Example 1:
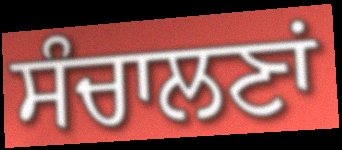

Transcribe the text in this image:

ਸੰਚਾਲਣਾਂ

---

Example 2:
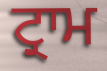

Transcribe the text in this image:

ਟ੍ਰਾਮ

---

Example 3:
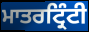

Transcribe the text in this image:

ਮਾਤਰਟ੍ਰਿੰਟੀ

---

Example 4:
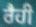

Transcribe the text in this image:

ਰੈਹੀ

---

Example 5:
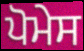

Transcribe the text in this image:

ਪੋਮੇਸ